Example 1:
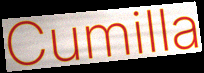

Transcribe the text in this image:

Cumilla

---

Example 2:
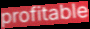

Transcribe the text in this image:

profitable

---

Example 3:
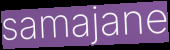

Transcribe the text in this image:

samajane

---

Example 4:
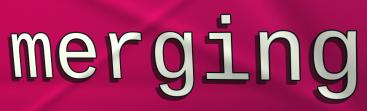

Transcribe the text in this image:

merging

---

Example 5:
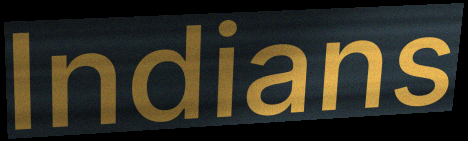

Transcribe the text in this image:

Indians